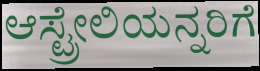
ಆಸ್ಟ್ರೇಲಿಯನ್ನರಿಗೆ